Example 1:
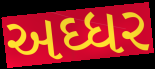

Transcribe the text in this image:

અઘ્ધર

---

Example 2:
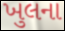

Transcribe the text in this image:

ખુલના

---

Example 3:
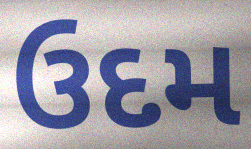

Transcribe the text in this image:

ઉદમ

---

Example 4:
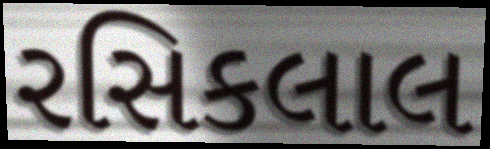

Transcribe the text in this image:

રસિકલાલ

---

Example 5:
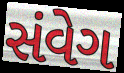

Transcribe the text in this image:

સંવેગ